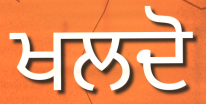
ਖਲਦੋ